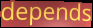
depends